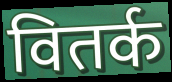
वितर्क